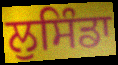
ਲੁਸਿੰਡਾ